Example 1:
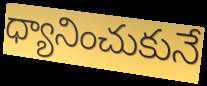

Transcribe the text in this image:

ధ్యానించుకునే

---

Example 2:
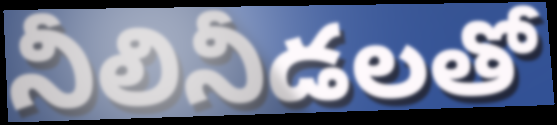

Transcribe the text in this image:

నీలినీడలతో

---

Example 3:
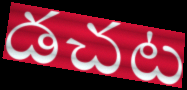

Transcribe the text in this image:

డచట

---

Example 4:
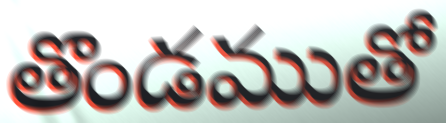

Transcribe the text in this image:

తొండముతో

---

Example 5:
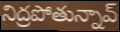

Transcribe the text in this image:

నిద్రపోతున్నావ్